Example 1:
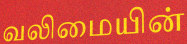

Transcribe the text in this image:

வலிமையின்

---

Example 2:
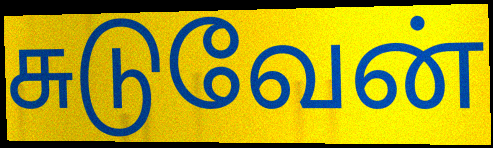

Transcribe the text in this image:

சுடுவேன்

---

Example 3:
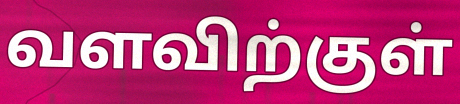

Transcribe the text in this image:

வளவிற்குள்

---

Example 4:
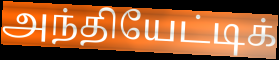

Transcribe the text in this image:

அந்தியேட்டிக்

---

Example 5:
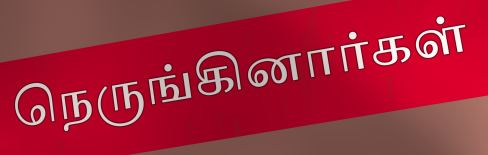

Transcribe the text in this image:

நெருங்கினார்கள்